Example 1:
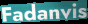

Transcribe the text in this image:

Fadanvis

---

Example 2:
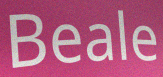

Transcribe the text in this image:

Beale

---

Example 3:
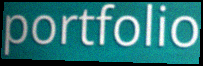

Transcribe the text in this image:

portfolio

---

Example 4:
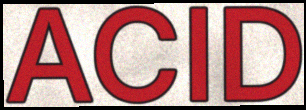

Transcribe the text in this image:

ACID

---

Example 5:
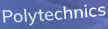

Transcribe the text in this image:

Polytechnics